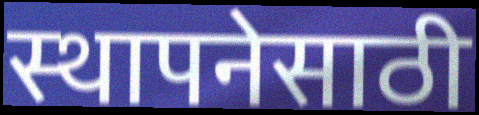
स्थापनेसाठी